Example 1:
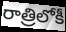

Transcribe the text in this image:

రాత్రిలోకీ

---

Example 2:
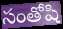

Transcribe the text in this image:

సంతోషి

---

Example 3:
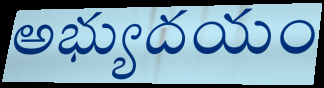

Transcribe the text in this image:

అభ్యుదయం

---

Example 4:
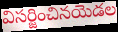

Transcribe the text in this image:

విసర్జించినయెడల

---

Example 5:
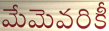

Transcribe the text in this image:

మేమెవరికీ